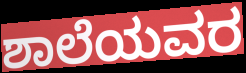
ಶಾಲೆಯವರ